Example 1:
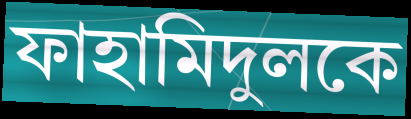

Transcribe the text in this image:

ফাহামিদুলকে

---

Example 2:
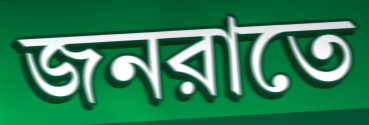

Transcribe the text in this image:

জনরাতে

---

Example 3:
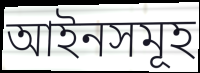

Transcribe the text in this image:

আইনসমূহ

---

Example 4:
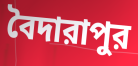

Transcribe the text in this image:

বৈদারাপুর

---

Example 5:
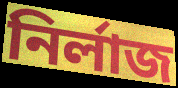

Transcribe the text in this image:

নির্লাজ